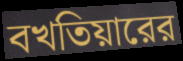
বখতিয়ারের